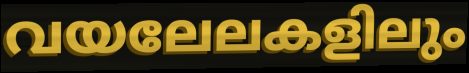
വയലേലകളിലും